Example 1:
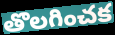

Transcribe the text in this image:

తొలగించక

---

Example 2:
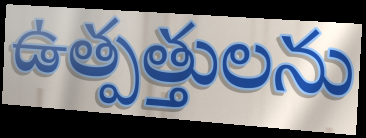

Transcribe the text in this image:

ఉత్పత్తులను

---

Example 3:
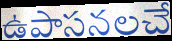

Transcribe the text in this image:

ఉపాసనలచే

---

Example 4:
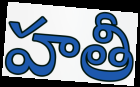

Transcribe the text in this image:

హతీ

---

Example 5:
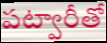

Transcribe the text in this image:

పట్వారీతో